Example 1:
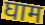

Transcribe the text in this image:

घाम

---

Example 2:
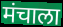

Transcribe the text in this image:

मंचाला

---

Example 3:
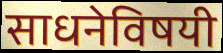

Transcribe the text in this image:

साधनेविषयी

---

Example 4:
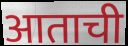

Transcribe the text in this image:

आताची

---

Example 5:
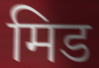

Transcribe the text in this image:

मिड